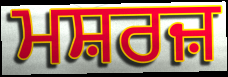
ਮਸ਼ਰਜ਼